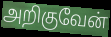
அறிகுவேன்